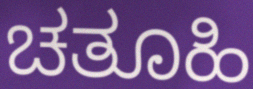
ಚತೂಹಿ